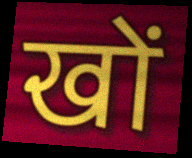
खों